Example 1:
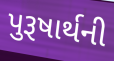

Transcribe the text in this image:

પુરૂષાર્થની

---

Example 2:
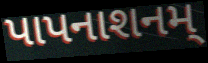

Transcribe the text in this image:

પાપનાશનમ્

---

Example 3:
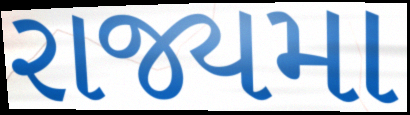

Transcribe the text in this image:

રાજ્યમા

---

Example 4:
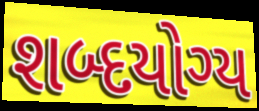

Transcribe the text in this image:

શબ્દયોગ્ય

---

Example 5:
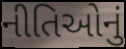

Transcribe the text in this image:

નીતિઓનું